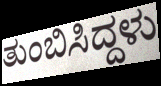
ತುಂಬಿಸಿದ್ದಳು